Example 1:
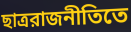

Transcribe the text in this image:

ছাত্ররাজনীতিতে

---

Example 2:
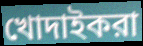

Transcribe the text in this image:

খোদাইকরা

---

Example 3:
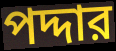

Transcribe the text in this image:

পদ্দার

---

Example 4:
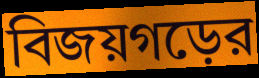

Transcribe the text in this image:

বিজয়গড়ের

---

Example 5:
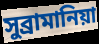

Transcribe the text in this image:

সুব্রামানিয়া